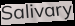
Salivary